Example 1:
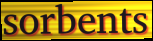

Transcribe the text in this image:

sorbents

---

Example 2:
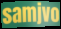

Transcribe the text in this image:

samjvo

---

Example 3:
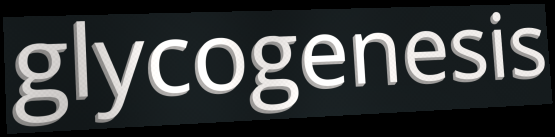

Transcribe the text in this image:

glycogenesis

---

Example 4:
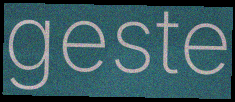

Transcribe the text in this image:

geste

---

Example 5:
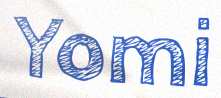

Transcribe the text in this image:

Yomi